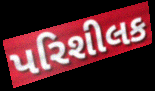
પરિશીલક